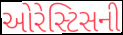
ઓરેસ્ટિસની